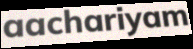
aachariyam